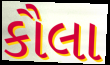
કૌલા